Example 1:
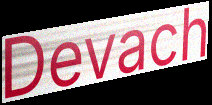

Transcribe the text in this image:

Devach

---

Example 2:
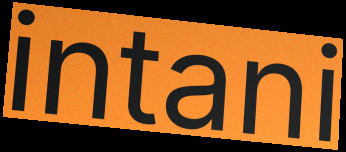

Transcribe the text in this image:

intani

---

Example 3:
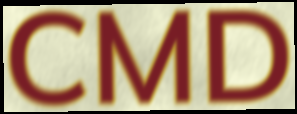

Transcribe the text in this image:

CMD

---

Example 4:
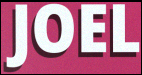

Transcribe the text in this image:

JOEL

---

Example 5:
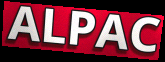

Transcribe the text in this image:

ALPAC